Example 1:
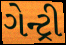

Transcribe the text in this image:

ગેન્ટ્રી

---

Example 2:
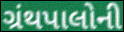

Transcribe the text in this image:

ગ્રંથપાલોની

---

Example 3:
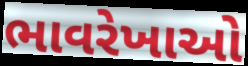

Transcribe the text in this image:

ભાવરેખાઓ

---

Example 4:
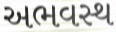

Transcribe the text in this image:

અભવસ્થ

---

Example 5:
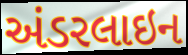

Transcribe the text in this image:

અંડરલાઇન